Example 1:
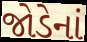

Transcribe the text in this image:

જોડેનાં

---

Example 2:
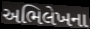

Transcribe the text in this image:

અભિલેખના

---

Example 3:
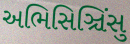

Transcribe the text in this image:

અભિસિઞ્ચિંસુ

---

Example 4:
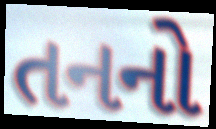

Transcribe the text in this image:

તનનો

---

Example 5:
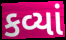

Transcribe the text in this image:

કવ્યાં